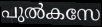
പുൽകസേ